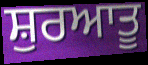
ਸ਼ੁਰਆਤੂ